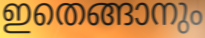
ഇതെങ്ങാനും